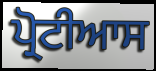
ਪ੍ਰੋਟੀਆਸ